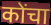
कोंचा